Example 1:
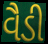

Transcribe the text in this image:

વૈડી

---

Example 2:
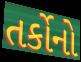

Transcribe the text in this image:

તર્કોનો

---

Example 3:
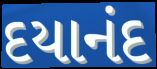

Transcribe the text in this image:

દયાનંદ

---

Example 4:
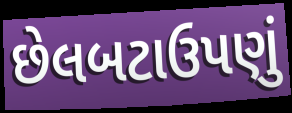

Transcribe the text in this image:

છેલબટાઉપણું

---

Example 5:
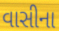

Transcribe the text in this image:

વાસીના